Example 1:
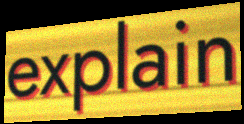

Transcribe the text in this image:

explain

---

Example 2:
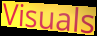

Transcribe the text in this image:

Visuals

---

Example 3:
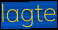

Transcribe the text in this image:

lagte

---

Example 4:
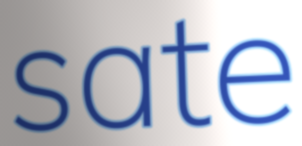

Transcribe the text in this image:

sate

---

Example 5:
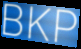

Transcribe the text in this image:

BKP